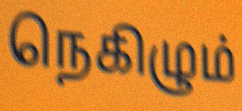
நெகிழும்